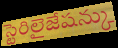
స్టెరిలైజేషన్కు